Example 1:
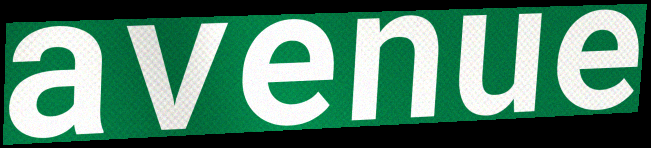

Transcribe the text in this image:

avenue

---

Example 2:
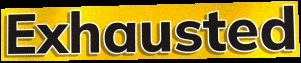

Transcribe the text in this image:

Exhausted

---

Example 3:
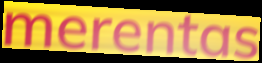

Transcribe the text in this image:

merentas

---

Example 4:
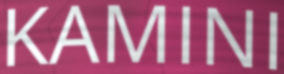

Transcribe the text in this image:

KAMINI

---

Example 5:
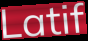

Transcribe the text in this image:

Latif